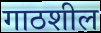
गाठशील